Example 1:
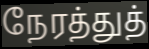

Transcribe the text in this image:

நேரத்துத்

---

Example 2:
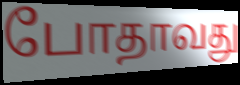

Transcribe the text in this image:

போதாவது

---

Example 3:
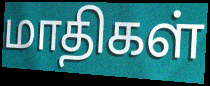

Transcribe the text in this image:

மாதிகள்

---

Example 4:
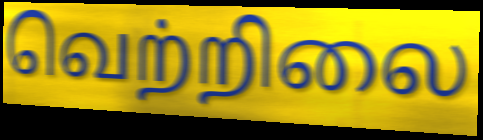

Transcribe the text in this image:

வெற்றிலை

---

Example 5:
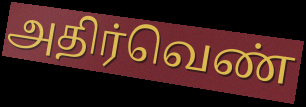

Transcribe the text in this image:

அதிர்வெண்